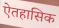
ऐतहासिक